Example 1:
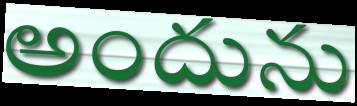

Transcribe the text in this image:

అందును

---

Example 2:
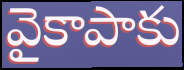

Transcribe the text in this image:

వైకాపాకు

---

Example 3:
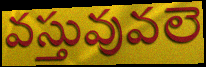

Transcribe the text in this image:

వస్తువువలె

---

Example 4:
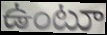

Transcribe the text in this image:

ఉంటూ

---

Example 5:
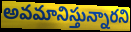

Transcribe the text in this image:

అవమానిస్తున్నారని